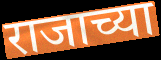
राजाच्या